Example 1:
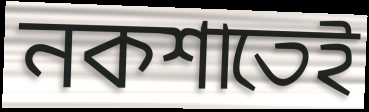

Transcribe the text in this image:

নকশাতেই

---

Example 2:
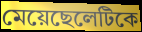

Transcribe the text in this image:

মেয়েছেলেটিকে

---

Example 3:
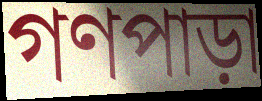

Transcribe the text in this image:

গণপাড়া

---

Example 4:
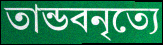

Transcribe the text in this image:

তান্ডবনৃত্যে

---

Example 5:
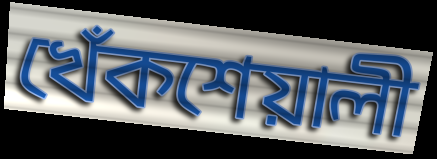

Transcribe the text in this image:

খেঁকশেয়ালী